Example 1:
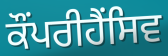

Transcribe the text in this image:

ਕੌਂਪਰੀਹੈਂਸਿਵ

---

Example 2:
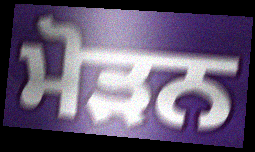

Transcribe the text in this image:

ਮੋੜਨ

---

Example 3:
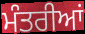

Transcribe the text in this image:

ਮੰਤਰੀਆਂ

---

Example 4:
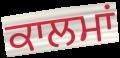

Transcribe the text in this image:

ਕਾਲਮਾਂ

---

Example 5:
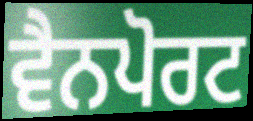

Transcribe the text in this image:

ਵੈਨਪੋਰਟ